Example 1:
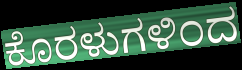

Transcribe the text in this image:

ಕೊರಳುಗಳಿಂದ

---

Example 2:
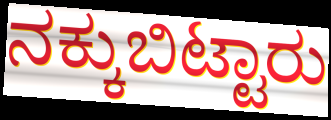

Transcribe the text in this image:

ನಕ್ಕುಬಿಟ್ಟಾರು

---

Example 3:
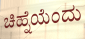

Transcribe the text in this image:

ಚಿಹ್ನೆಯೆಂದು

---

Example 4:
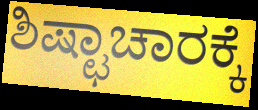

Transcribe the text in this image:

ಶಿಷ್ಟಾಚಾರಕ್ಕೆ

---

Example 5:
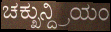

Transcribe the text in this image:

ಚಕ್ಖುನ್ದ್ರಿಯಂ